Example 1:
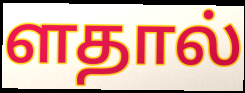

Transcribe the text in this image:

ளதால்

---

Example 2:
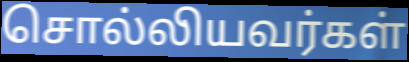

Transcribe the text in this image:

சொல்லியவர்கள்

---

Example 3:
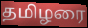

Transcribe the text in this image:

தமிழரை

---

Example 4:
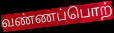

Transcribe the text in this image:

வண்ணப்பொற்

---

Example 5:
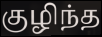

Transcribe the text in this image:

குழிந்த